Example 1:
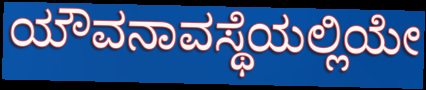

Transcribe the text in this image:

ಯೌವನಾವಸ್ಥೆಯಲ್ಲಿಯೇ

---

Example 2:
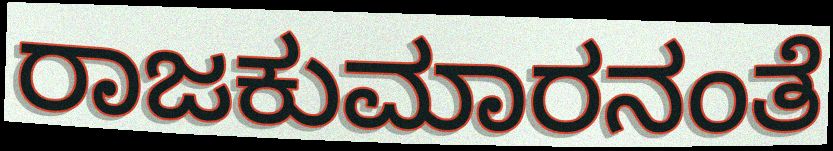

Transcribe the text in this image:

ರಾಜಕುಮಾರನಂತೆ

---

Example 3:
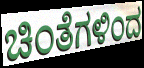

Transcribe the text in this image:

ಚಿಂತೆಗಳಿಂದ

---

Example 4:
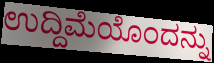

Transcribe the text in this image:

ಉದ್ದಿಮೆಯೊಂದನ್ನು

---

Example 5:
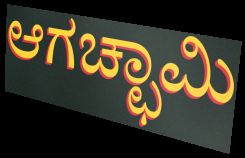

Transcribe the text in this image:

ಆಗಚ್ಛಾಮಿ